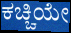
ಕಚ್ಚಿಯೇ